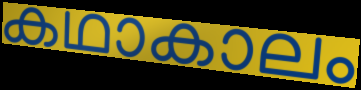
കഥാകാലം